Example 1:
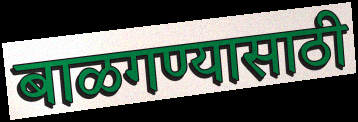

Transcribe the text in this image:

बाळगण्यासाठी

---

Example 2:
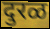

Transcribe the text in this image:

दुरळ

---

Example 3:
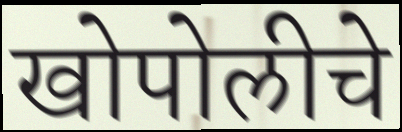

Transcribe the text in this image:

खोपोलीचे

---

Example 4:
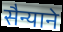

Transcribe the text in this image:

सैन्याने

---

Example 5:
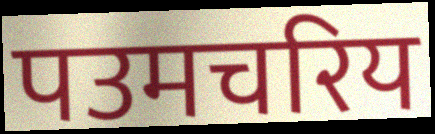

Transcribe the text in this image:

पउमचरिय